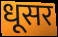
धूसर